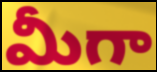
మీగా